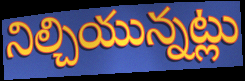
నిల్చియున్నట్లు